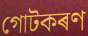
গোটকৰণ